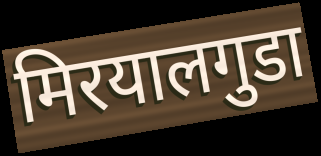
मिरयालगुडा